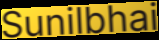
Sunilbhai